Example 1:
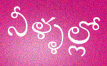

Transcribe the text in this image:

నీళ్ళల్లో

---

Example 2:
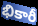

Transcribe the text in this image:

భికారీ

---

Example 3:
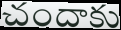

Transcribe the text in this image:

చందాకు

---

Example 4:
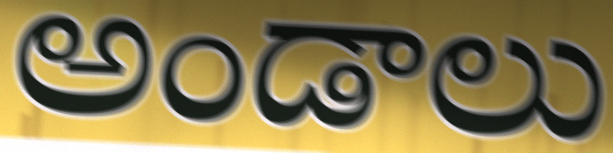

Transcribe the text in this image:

అండాలు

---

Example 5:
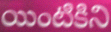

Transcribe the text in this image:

యింటికిని